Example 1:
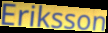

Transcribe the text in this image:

Eriksson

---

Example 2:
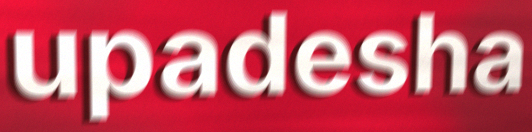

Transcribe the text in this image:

upadesha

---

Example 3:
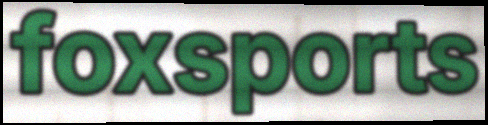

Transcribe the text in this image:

foxsports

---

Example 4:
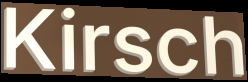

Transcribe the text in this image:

Kirsch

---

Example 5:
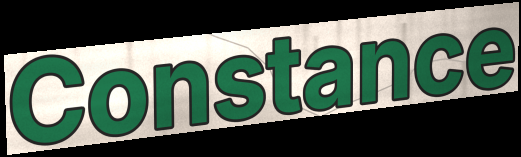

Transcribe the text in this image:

Constance